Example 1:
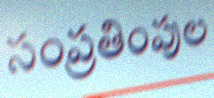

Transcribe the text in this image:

సంప్రతింపుల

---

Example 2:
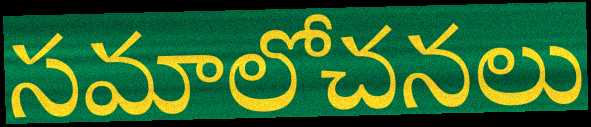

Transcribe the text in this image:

సమాలోచనలు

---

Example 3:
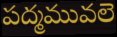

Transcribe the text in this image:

పద్మమువలె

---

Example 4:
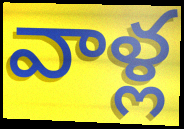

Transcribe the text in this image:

వాళ్ల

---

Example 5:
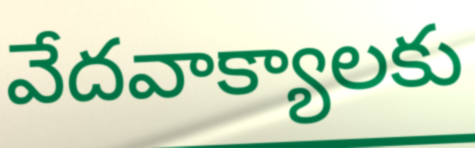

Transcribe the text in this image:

వేదవాక్యాలకు